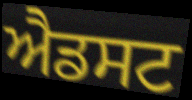
ਐਡਸਟ